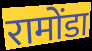
रामोंडा